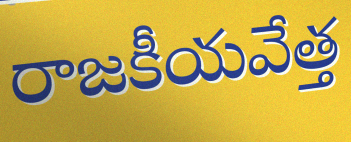
రాజకీయవేత్త